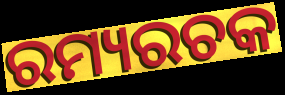
ରମ୍ୟରଚକ